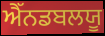
ਐੱਨਡਬਲਯੂ